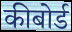
कीबोर्ड